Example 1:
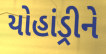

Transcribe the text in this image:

યોહાંડ્રીને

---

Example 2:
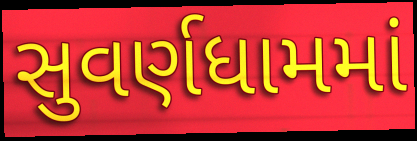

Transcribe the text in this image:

સુવર્ણધામમાં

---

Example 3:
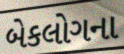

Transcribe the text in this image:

બેકલોગના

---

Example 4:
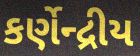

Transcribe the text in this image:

કર્ણેન્દ્રીય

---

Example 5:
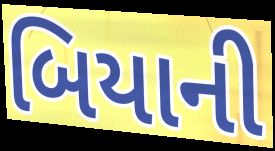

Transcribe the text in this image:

બિયાની